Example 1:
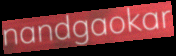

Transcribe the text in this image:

nandgaokar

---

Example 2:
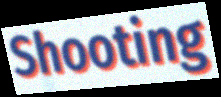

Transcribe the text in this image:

Shooting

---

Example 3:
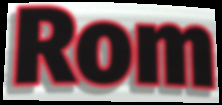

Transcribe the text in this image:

Rom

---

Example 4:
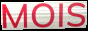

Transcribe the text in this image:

MOIS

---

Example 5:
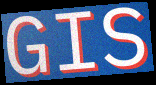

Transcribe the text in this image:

GIS